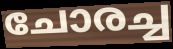
ചോരച്ച